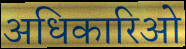
अधिकारिओ